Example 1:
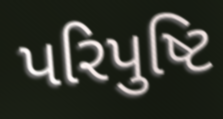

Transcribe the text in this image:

પરિપુષ્ટિ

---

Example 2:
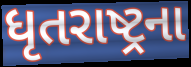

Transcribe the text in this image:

ધૃતરાષ્ટ્રના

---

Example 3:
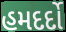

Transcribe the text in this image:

હમદર્દો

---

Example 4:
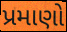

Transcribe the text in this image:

પ્રમાણો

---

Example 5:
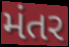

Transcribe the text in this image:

મંતર